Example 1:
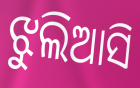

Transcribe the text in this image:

ଝୁଲିଆସି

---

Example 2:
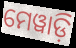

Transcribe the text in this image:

ମେୱାଡ଼ି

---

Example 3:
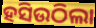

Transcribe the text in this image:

ହସିଉଠିଲା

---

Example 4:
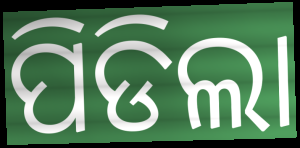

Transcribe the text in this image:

ପିଡିଲା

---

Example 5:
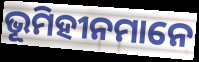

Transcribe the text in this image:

ଭୂମିହୀନମାନେ